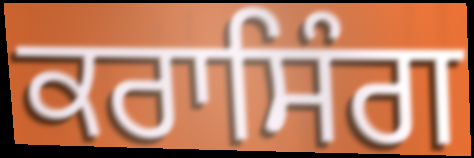
ਕਰਾਸਿੰਗ